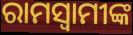
ରାମସ୍ୱାମୀଙ୍କ